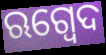
ଋଗ୍ବେଦ